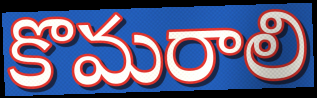
కొమరాలి